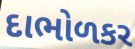
દાભોળકર